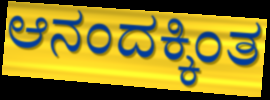
ಆನಂದಕ್ಕಿಂತ